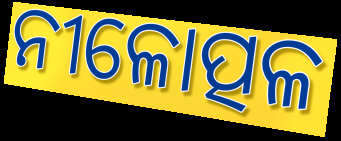
ନୀଳୋତ୍ପଳ